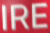
IRE